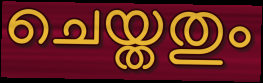
ചെയ്തതും